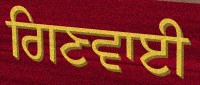
ਗਿਣਵਾਈ